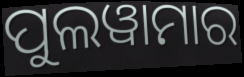
ପୁଲୱାମାର